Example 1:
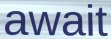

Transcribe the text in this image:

await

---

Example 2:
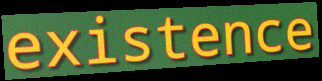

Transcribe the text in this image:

existence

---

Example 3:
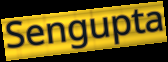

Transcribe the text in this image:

Sengupta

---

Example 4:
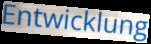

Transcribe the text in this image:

Entwicklung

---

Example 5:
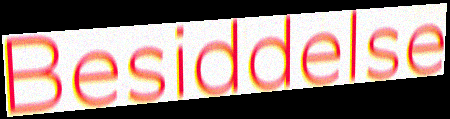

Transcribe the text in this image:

Besiddelse